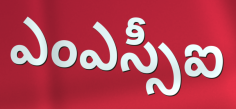
ఎంఎస్సీఐ